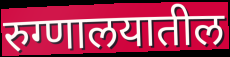
रुग्णालयातील